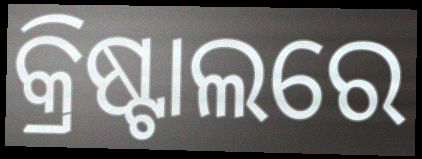
କ୍ରିଷ୍ଟାଲରେ